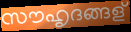
സൗഹൃദങ്ങള്